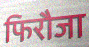
फिरौजा